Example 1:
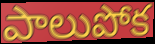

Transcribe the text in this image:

పాలుపోక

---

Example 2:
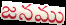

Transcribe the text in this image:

జనము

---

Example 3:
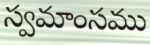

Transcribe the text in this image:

స్వమాంసము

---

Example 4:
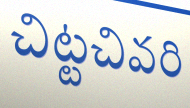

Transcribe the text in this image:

చిట్టచివరి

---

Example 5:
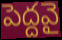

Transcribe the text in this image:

పెద్దవై